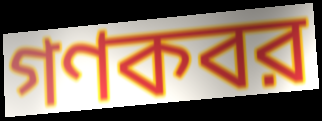
গণকবর